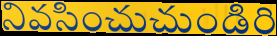
నివసించుచుండిరి